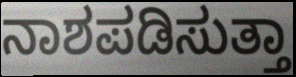
ನಾಶಪಡಿಸುತ್ತಾ